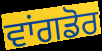
ਵਾਂਗਡੋਰ